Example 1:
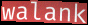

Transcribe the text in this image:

walank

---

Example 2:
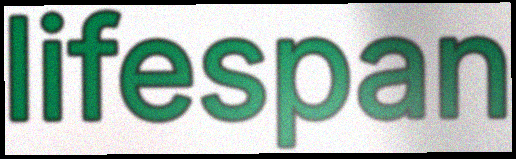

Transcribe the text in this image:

lifespan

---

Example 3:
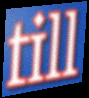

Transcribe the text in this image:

till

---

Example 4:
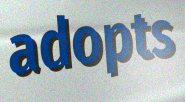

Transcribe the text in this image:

adopts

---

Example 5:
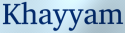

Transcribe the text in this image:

Khayyam